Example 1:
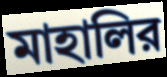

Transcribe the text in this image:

মাহালির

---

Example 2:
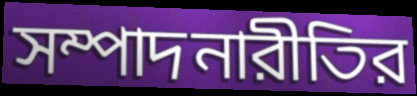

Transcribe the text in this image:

সম্পাদনারীতির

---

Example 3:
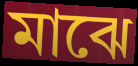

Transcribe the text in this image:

মাঝে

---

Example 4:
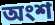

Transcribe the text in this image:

অংশ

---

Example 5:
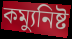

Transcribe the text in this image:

কম্যুনিষ্ট